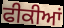
ਫੀਕੀਆਂ